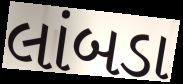
લાંબડા